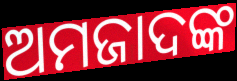
ଅମଜାଦଙ୍କ